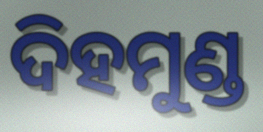
ଦିହମୁଣ୍ଡ